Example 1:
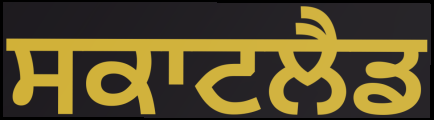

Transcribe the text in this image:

ਸਕਾਟਲੈਡ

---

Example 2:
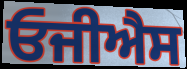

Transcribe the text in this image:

ਓਜੀਐਸ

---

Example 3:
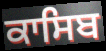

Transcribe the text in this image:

ਕਾਸਿਬ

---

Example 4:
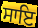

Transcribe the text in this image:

ਸਾਇ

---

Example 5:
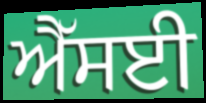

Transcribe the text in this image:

ਐੱਸਈ